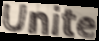
Unite